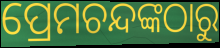
ପ୍ରେମଚନ୍ଦଙ୍କଠାରୁ